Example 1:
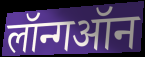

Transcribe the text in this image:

लॉन्गऑन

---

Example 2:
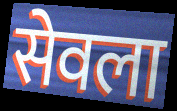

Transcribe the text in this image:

सेवला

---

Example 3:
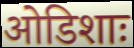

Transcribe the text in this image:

ओडिशाः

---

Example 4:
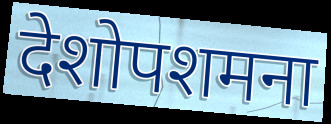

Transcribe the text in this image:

देशोपशमना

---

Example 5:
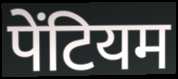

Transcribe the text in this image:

पेंटियम